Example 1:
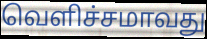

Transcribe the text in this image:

வெளிச்சமாவது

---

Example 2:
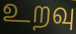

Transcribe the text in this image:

உறவு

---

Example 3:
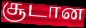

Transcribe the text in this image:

சூடான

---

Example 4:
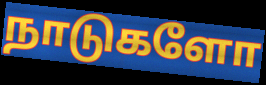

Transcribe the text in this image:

நாடுகளோ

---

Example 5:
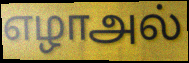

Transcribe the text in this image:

எழாஅல்